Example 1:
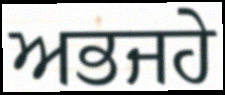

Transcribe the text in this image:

ਅਭਜਹੇ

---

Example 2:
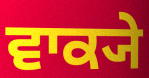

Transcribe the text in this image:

ਵਾਕ੍ਯੇ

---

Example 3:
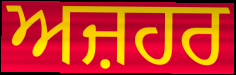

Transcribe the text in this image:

ਅਜ਼ਹਰ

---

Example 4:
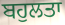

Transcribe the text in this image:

ਬਹੁਲਤਾ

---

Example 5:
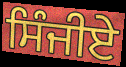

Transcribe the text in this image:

ਸਿੰਜੀਏ